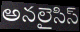
అనలైసిస్